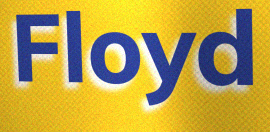
Floyd